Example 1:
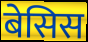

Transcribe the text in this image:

बेसिस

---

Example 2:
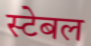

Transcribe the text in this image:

स्‍टेबल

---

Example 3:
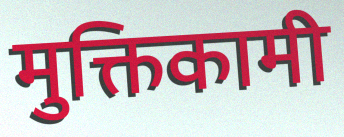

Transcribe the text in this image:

मुक्तिकामी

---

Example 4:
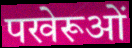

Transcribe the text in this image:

पखेरूओं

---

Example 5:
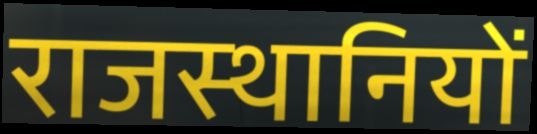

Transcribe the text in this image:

राजस्थानियों